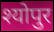
श्योपुर